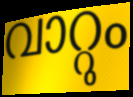
വാറ്റും